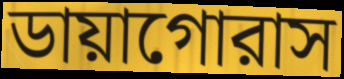
ডায়াগোরাস